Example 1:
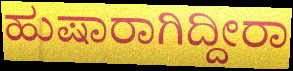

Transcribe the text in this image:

ಹುಷಾರಾಗಿದ್ದೀರಾ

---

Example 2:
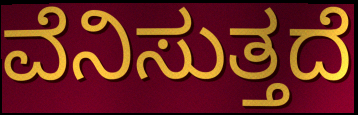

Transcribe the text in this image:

ವೆನಿಸುತ್ತದೆ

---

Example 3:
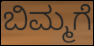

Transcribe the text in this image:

ಬಿಮ್ಮಗೆ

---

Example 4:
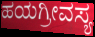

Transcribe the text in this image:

ಹಯಗ್ರೀವಸ್ಯ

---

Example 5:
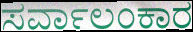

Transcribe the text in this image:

ಸರ್ವಾಲಂಕಾರ